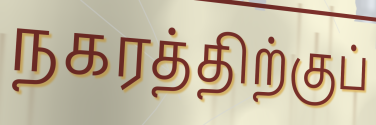
நகரத்திற்குப்